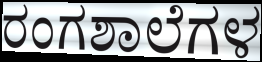
ರಂಗಶಾಲೆಗಳ